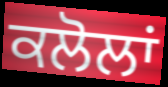
ਕਲੋਲਾਂ